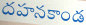
దహనకాండ